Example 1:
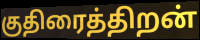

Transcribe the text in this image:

குதிரைத்திறன்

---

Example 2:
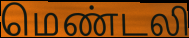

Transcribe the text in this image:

மெண்டலி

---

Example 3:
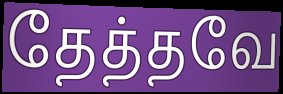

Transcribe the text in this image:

தேத்தவே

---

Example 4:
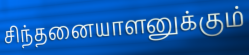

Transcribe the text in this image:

சிந்தனையாளனுக்கும்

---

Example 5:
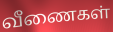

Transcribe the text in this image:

வீணைகள்